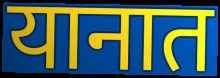
यानात